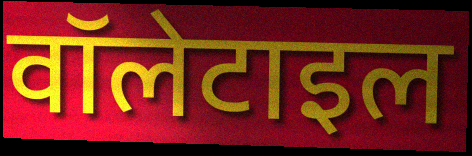
वॉलेटाइल